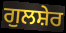
ਗੁਲਸ਼ੇਰ